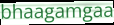
bhaagamgaa